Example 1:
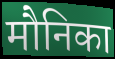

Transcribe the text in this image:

मौनिका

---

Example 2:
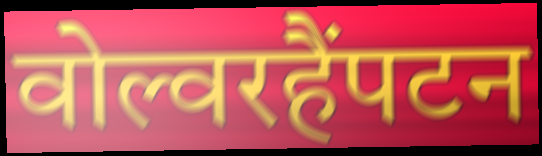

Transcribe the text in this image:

वोल्वरहैंपटन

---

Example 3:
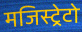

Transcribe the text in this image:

मजिस्ट्रेटो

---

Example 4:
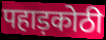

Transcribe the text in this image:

पहाड़कोठी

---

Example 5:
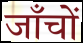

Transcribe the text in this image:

जाँचों